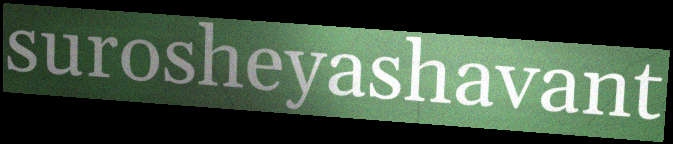
surosheyashavant